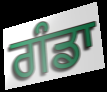
ਗੰਡਾ